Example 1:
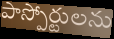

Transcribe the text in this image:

పాస్పోర్టులను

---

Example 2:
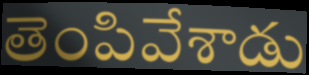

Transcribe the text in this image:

తెంపివేశాడు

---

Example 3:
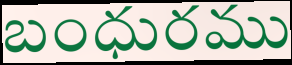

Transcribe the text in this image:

బంధురము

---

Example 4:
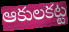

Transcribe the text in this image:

ఆకులకట్ట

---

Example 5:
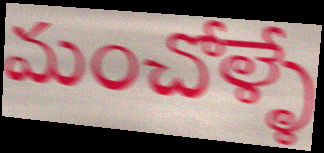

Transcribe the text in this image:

మంచోళ్ళే